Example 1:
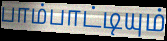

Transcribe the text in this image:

பாம்பாட்டியும்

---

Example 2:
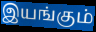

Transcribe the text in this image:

இயங்கும்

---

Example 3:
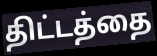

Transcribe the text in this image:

திட்டத்தை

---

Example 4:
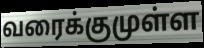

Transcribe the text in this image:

வரைக்குமுள்ள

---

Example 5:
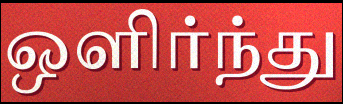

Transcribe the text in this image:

ஒளிர்ந்து